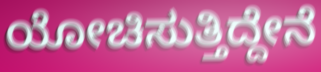
ಯೋಚಿಸುತ್ತಿದ್ದೇನೆ